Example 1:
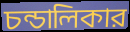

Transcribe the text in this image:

চন্ডালিকার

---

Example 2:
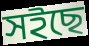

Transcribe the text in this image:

সইছে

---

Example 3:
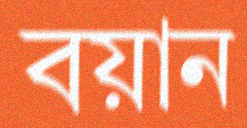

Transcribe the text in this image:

বয়ান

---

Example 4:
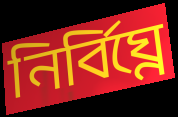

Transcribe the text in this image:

নির্বিঘ্নে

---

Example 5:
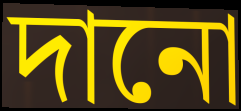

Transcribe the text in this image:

দানো